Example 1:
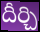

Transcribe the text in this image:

దీర్చి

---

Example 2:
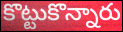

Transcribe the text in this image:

కొట్టుకొన్నారు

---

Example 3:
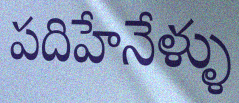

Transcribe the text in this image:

పదిహేనేళ్ళు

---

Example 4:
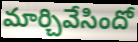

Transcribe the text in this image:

మార్చివేసిందో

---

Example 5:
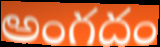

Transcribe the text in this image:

అంగదం